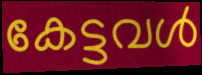
കേട്ടവൾ